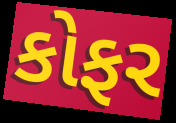
કોફર